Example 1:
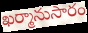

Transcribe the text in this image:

ఖర్మానుసారం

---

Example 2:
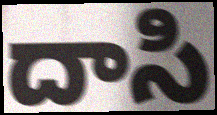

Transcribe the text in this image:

దాసి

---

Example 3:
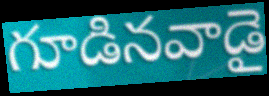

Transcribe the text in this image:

గూడినవాడై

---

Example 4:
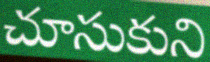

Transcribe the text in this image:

చూసుకుని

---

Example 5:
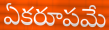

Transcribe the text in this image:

ఏకరూపమే